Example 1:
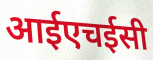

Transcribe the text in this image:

आईएचईसी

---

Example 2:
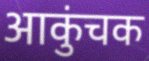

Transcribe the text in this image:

आकुंचक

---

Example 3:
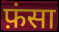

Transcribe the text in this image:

फ़ंसा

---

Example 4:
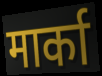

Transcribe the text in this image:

मार्का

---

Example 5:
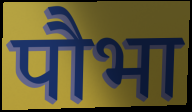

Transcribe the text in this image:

पौभा